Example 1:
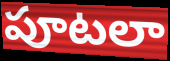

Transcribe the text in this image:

పూటలా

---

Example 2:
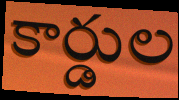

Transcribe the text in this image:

కార్డుల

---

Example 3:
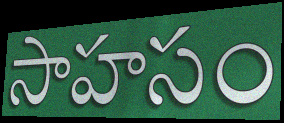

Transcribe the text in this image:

సాహసం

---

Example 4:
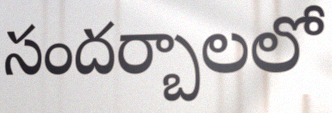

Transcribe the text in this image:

సందర్బాలలో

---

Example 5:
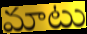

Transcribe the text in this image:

మాటు